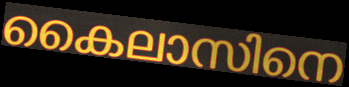
കൈലാസിനെ